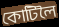
কোটিলৈ